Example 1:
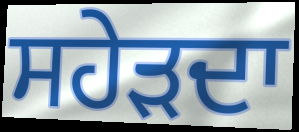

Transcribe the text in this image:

ਸਹੇੜਦਾ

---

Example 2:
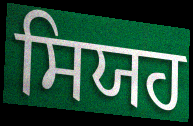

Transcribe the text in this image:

ਸਿਯਹ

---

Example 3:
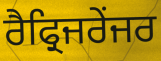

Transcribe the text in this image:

ਰੈਫ੍ਰਿਜਰੇਂਜਰ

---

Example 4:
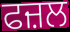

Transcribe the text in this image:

ਫਜ਼ਲ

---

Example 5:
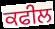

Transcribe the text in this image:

ਕਫੀਲ